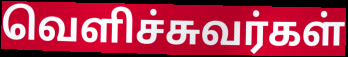
வெளிச்சுவர்கள்